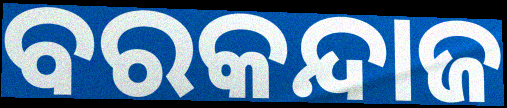
ବରକନ୍ଦାଜ